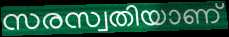
സരസ്വതിയാണ്